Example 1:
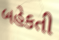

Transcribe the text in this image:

બહેકતી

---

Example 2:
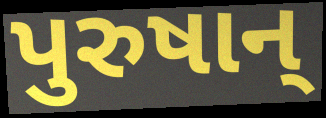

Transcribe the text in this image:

પુરુષાન્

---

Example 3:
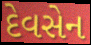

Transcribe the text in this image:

દેવસેન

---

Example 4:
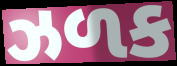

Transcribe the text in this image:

ઝળક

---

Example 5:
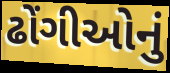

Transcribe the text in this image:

ઢોંગીઓનું